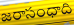
జరాసంధాది